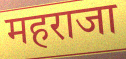
महराजा